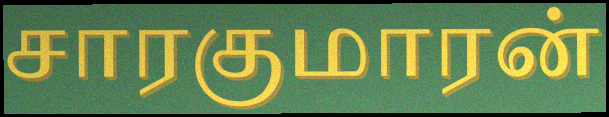
சாரகுமாரன்